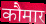
कौमार